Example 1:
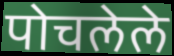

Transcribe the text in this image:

पोचलेले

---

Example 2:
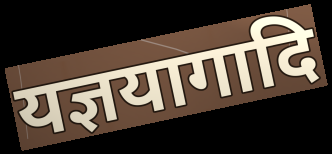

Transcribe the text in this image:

यज्ञयागादि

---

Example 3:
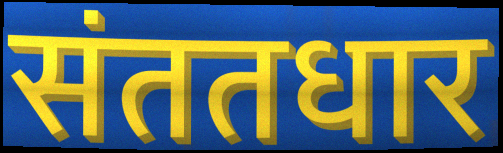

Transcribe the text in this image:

संततधार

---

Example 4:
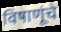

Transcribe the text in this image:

विषाणूंचे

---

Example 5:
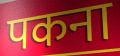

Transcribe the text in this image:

पकना